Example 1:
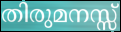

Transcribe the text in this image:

തിരുമനസ്സ്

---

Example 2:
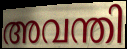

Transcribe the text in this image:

അവന്തി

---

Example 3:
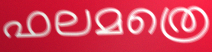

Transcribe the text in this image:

ഫലമത്രെ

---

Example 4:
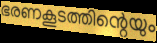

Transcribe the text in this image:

ഭരണകൂടത്തിന്റെയും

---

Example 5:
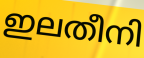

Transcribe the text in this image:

ഇലതീനി